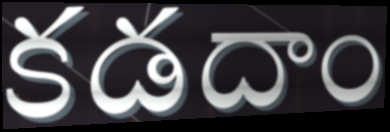
కడదాం